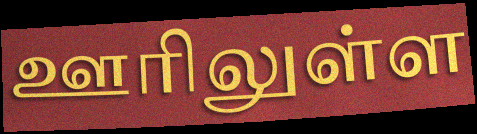
ஊரிலுள்ள